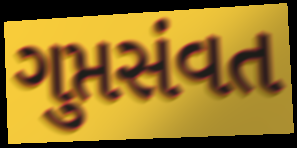
ગુપ્તસંવત